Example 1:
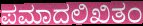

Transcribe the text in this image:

ಪಮಾದಲಿಖಿತಂ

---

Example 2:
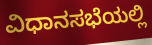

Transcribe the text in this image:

ವಿಧಾನಸಭೆಯಲ್ಲಿ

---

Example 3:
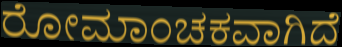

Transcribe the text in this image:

ರೋಮಾಂಚಕವಾಗಿದೆ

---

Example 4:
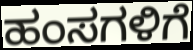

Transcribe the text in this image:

ಹಂಸಗಳಿಗೆ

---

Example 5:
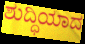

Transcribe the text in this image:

ಶುದ್ಧಿಯಾದ